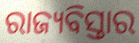
ରାଜ୍ୟବିସ୍ତାର